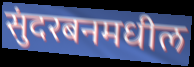
सुंदरबनमधील